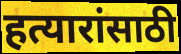
हत्यारांसाठी